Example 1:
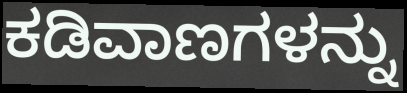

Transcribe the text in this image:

ಕಡಿವಾಣಗಳನ್ನು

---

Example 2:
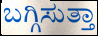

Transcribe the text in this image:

ಬಗ್ಗಿಸುತ್ತಾ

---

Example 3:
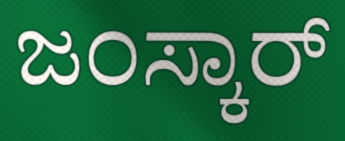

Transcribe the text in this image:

ಜಂಸ್ಕಾರ್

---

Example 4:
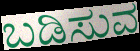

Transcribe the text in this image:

ಬಡಿಸುವ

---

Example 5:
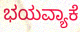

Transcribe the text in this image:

ಭಯವ್ಯಾಕೆ